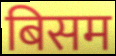
बिसम